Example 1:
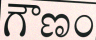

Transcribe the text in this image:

గౌణం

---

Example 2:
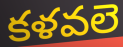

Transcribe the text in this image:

కళవలె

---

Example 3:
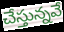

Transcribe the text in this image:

చేస్తున్నవే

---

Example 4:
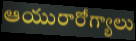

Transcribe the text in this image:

ఆయురారోగ్యాలు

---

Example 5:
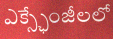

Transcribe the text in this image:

ఎక్స్ఛేంజీలలో